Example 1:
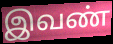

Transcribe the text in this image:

இவண்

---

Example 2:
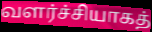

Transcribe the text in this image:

வளர்ச்சியாகத்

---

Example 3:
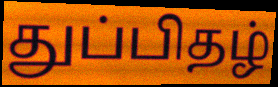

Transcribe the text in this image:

துப்பிதழ்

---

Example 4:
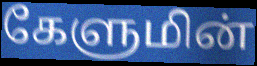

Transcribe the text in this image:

கேளுமின்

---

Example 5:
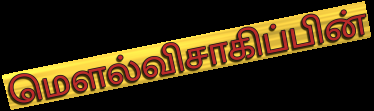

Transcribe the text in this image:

மௌல்விசாகிப்பின்